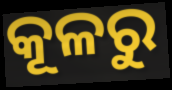
କୂଳରୁ